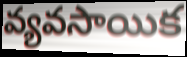
వ్యవసాయిక